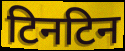
टिनटिन